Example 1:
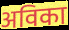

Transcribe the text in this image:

अविका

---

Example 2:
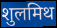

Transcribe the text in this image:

शुलमिथ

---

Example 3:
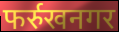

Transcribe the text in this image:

फर्रुखनगर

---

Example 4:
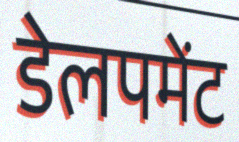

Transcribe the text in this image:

डेलपमेंट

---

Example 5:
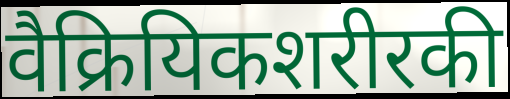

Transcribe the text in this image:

वैक्रियिकशरीरकी